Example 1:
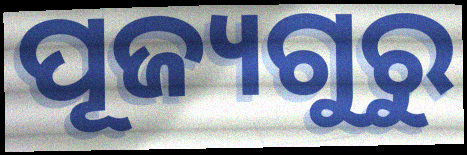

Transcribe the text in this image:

ପୂଜ୍ୟଗୁରୁ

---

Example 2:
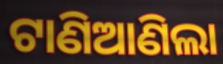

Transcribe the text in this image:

ଟାଣିଆଣିଲା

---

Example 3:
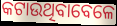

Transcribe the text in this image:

କଟାଉଥିବାବେଳେ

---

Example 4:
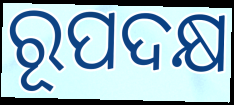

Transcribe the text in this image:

ରୂପଦକ୍ଷ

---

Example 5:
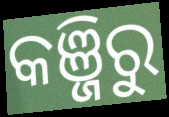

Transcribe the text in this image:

କଞ୍ଜିରୁ